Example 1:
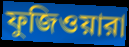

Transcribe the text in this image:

ফুজিওয়ারা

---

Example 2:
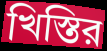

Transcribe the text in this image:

খিস্তির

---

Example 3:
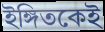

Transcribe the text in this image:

ইঙ্গিতকেই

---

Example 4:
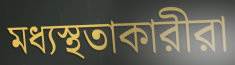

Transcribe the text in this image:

মধ্যস্থতাকারীরা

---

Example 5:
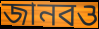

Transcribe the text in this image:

জানবও